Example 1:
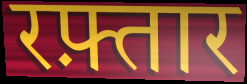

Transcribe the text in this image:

रफ़्तार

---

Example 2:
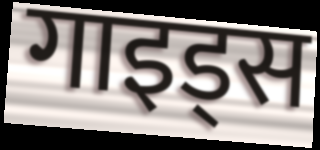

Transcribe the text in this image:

गाइड्स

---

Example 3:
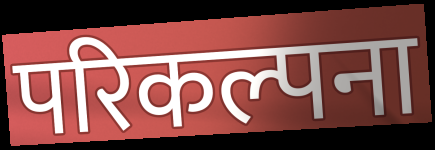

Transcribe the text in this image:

परिकल्पना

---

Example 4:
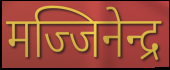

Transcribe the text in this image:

मज्जिनेन्द्र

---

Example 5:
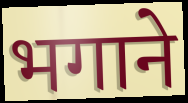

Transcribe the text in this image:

भगाने